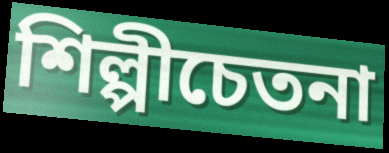
শিল্পীচেতনা